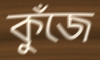
কুঁজে